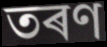
তৰণ